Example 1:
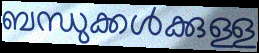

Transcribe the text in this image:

ബന്ധുക്കൾക്കുള്ള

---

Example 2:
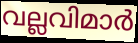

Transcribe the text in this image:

വല്ലവിമാർ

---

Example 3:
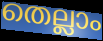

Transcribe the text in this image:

തെല്ലാം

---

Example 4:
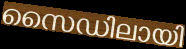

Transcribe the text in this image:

സൈഡിലായി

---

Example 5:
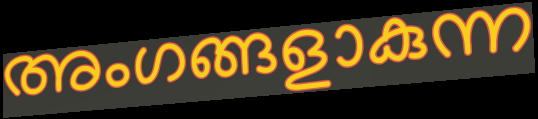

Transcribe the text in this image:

അംഗങ്ങളാകുന്ന